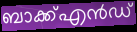
ബാക്ക്എൻഡ്